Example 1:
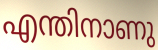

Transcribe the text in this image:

എന്തിനാണു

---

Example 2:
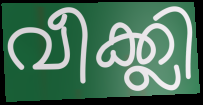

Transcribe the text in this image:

വീക്ക്ലി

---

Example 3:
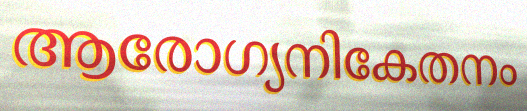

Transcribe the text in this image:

ആരോഗ്യനികേതനം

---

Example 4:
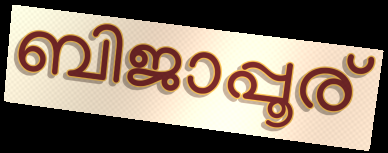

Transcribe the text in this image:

ബിജാപ്പൂര്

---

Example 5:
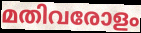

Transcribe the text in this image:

മതിവരോളം